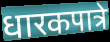
धारकपात्रे